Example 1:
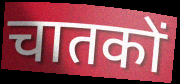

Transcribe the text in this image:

चातकों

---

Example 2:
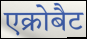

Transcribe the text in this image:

एक्रोबैट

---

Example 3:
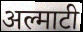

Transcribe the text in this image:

अल्माटी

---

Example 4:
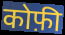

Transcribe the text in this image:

कोफ़ी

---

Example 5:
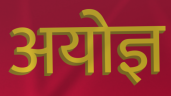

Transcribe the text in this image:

अयोज्ञ